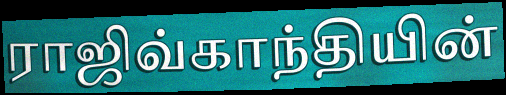
ராஜிவ்காந்தியின்